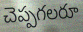
చెప్పగలరూ